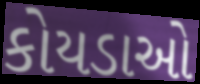
કોયડાઓ